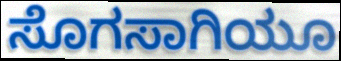
ಸೊಗಸಾಗಿಯೂ